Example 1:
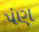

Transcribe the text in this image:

પંણ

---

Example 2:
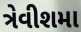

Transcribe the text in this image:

ત્રેવીશમા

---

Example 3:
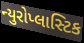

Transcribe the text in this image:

ન્યુરોપ્લાસ્ટિક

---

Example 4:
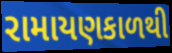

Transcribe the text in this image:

રામાયણકાળથી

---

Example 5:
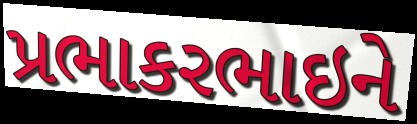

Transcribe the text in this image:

પ્રભાકરભાઇને